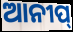
ଆନୀପ୍